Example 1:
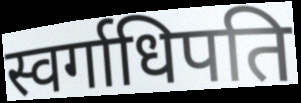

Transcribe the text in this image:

स्वर्गाधिपति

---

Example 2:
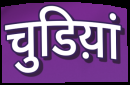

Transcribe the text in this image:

चुडिय़ां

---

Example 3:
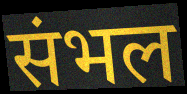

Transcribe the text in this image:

संभल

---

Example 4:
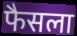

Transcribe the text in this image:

फैसला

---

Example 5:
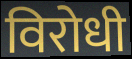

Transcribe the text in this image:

विरोधी